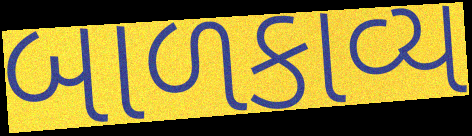
બાળકાવ્ય